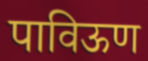
पाविऊण